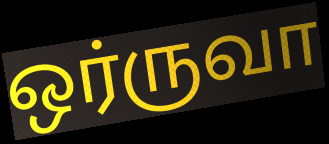
ஒர்ருவா